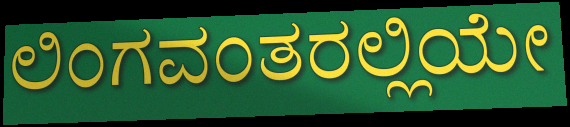
ಲಿಂಗವಂತರಲ್ಲಿಯೇ